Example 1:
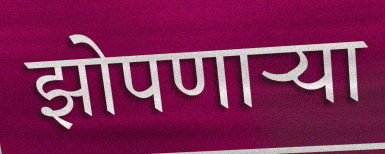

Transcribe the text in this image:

झोपणाऱ्या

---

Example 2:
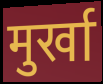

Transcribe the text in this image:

मुर्खा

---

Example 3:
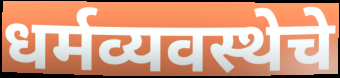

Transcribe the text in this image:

धर्मव्यवस्थेचे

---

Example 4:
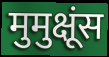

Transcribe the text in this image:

मुमुक्षूंस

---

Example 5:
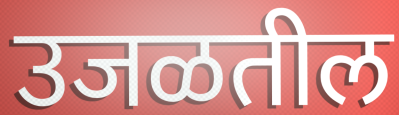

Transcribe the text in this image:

उजळतील